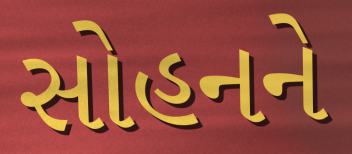
સોહનને